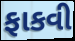
ફાકવી